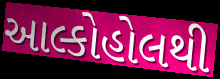
આલ્કોહોલથી